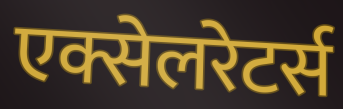
एक्सेलरेटर्स